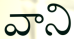
వాని